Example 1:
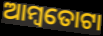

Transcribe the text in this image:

ଆମ୍ବତୋଟା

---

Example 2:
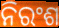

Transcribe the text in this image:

ନିରଂଶ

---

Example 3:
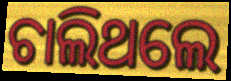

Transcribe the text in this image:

ଚାଲିଥଲେ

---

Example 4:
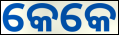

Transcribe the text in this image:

କେକେ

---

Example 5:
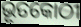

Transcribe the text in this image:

ଭୂତକୋଠୀ